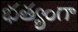
భత్యంగా